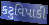
કટુવિપાકી